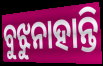
ବୁଝୁନାହାନ୍ତି